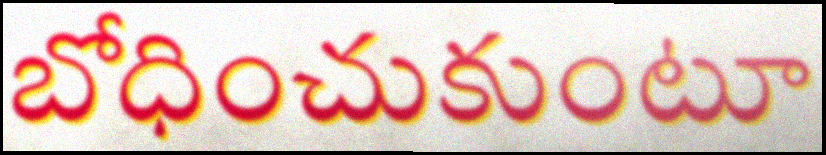
బోధించుకుంటూ